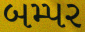
બમ્પર